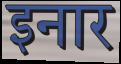
इनार